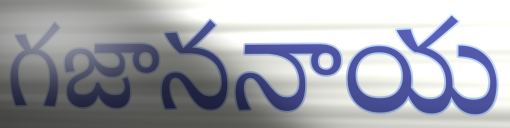
గజాననాయ